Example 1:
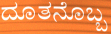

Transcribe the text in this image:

ದೂತನೊಬ್ಬ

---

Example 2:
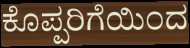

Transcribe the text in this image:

ಕೊಪ್ಪರಿಗೆಯಿಂದ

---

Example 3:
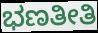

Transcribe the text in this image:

ಭಣತೀತಿ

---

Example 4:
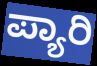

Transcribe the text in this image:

ಪ್ಯಾರಿ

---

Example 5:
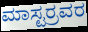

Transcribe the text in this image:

ಮಾಸ್ಟರ್ರವರ